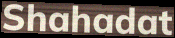
Shahadat